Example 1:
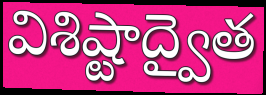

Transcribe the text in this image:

విశిష్టాద్వైత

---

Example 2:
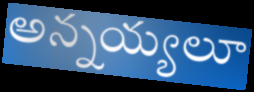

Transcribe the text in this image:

అన్నయ్యలూ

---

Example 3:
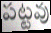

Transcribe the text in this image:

పట్టవు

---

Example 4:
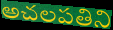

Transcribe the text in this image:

అచలపతిని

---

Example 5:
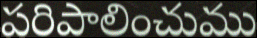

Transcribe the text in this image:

పరిపాలించుము